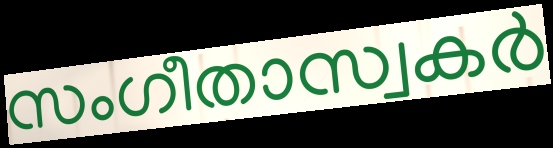
സംഗീതാസ്വകർ